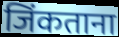
जिंकताना